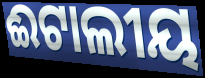
ଈଟାଲୀୟ